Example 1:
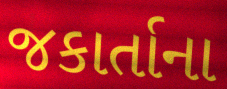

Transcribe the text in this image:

જકાર્તાના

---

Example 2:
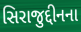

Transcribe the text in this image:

સિરાજુદ્દીનના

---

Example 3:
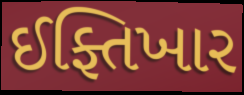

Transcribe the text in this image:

ઈફ્તિખાર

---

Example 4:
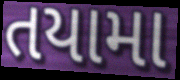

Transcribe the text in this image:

તયામા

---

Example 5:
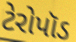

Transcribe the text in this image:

ટેરોપૉડ